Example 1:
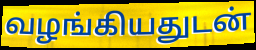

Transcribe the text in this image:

வழங்கியதுடன்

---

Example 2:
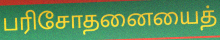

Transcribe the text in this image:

பரிசோதனையைத்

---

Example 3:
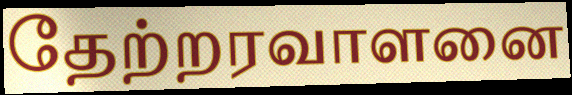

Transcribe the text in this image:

தேற்றரவாளனை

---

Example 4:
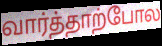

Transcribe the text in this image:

வார்த்தாற்போல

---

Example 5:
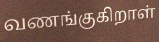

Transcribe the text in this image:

வணங்குகிறாள்